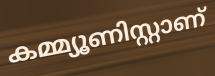
കമ്മ്യൂണിസ്റ്റാണ്